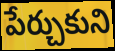
పేర్చుకుని